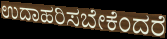
ಉದಾಹರಿಸಬೇಕೆಂದರೆ